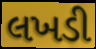
લખડી